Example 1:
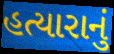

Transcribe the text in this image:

હત્યારાનું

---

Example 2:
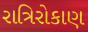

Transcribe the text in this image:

રાત્રિરોકાણ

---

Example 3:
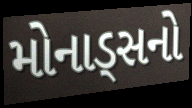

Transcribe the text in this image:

મોનાડ્સનો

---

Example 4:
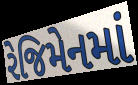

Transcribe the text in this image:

રેજિમેનમાં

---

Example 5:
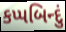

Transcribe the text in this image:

કપ્પબિન્દું